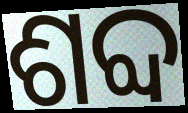
ଶବ୍ଦ